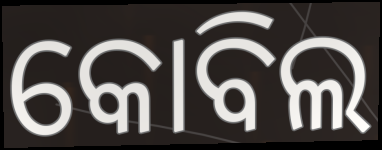
କୋବିଲ